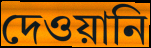
দেওয়ানি